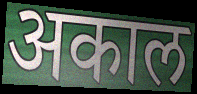
अकाल